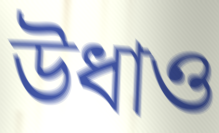
উধাও